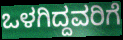
ಒಳಗಿದ್ದವರಿಗೆ